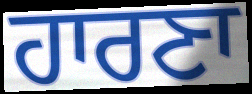
ਹਾਰਣਾ